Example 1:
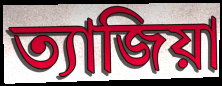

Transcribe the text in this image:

ত্যাজিয়া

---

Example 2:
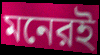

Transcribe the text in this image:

মনেরই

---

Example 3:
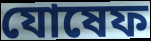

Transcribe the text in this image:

যোষেফ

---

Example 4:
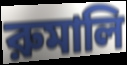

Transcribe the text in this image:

রুমালি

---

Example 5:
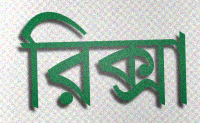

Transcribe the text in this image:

রিক্সা